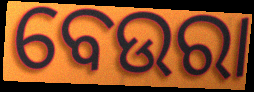
ବେଉରା